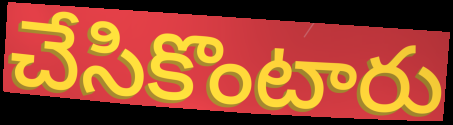
చేసికొంటారు